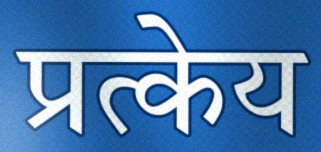
प्रत्केय